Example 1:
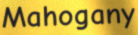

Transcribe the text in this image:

Mahogany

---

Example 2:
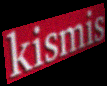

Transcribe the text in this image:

kismis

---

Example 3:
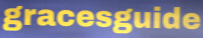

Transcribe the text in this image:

gracesguide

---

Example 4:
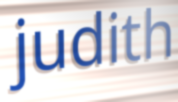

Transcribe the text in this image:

judith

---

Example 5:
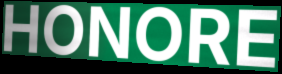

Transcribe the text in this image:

HONORE